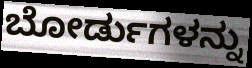
ಬೋರ್ಡುಗಳನ್ನು